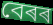
বেৰৰ